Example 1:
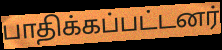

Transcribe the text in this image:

பாதிக்கப்பட்டனர்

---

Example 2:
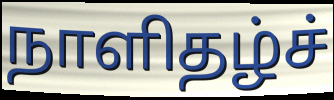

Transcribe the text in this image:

நாளிதழ்ச்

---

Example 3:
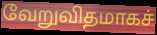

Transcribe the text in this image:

வேறுவிதமாகச்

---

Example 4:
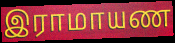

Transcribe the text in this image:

இராமாயண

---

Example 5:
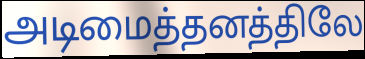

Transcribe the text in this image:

அடிமைத்தனத்திலே